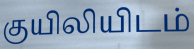
குயிலியிடம்